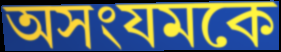
অসংযমকে